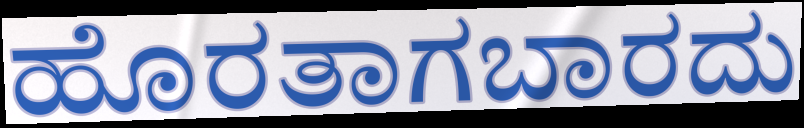
ಹೊರತಾಗಬಾರದು